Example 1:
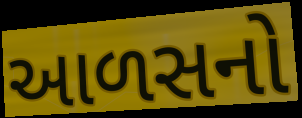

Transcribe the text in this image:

આળસનો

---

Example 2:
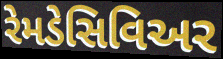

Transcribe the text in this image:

રેમડેસિવિઅર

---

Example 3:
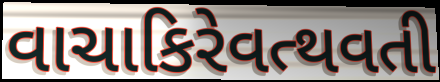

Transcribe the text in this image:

વાચાકિરેવત્થવતી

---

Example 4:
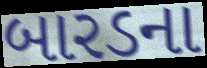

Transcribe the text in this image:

બારડના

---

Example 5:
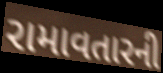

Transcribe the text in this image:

રામાવતારની